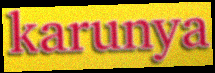
karunya